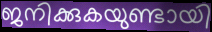
ജനിക്കുകയുണ്ടായി